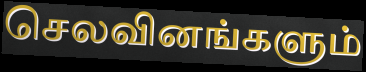
செலவினங்களும்